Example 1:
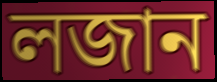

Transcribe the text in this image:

লজান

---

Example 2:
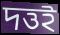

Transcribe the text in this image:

দত্তই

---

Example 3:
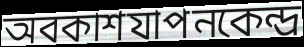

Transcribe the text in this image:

অবকাশযাপনকেন্দ্র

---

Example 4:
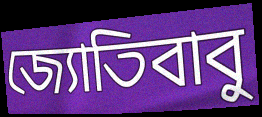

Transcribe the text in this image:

জ্যোতিবাবু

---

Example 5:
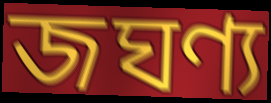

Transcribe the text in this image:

জঘণ্য